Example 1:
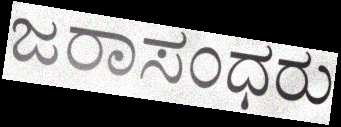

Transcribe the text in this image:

ಜರಾಸಂಧರು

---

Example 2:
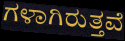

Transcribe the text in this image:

ಗಳಾಗಿರುತ್ತವೆ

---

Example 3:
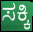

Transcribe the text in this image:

ಸಕ್ಕಿ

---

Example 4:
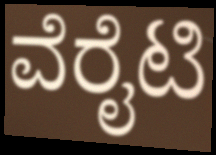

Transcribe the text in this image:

ವೆರೈಟಿ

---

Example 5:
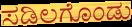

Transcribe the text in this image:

ಸಡಿಲಗೊಂಡು